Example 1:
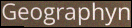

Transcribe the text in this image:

Geographyn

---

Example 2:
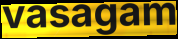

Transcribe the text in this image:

vasagam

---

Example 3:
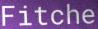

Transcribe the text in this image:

Fitche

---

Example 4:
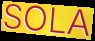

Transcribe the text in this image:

SOLA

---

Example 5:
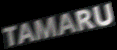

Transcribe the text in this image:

TAMARU